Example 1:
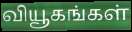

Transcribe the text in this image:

வியூகங்கள்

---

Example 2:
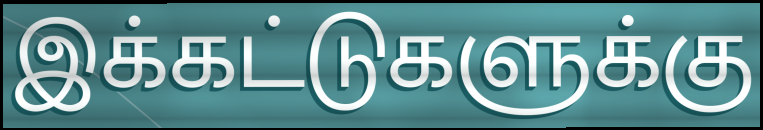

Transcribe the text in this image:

இக்கட்டுகளுக்கு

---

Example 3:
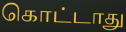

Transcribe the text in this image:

கொட்டாது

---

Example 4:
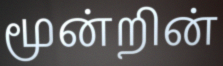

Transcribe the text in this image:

மூன்றின்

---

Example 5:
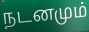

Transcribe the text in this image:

நடனமும்